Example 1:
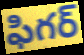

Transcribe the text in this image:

ఫిగర్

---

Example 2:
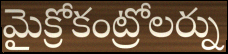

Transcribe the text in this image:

మైక్రోకంట్రోలర్ను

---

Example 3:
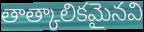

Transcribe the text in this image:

తాత్కాలికమైనవి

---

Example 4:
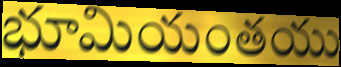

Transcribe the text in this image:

భూమియంతయు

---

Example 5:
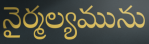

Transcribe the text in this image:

నైర్మల్యమును